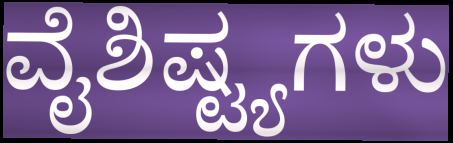
ವೈಶಿಷ್ಟ್ಯಗಳು